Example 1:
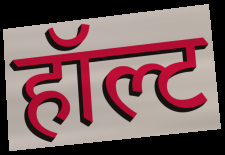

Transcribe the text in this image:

हॉल्ट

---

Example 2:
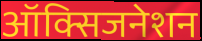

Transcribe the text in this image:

ऑक्सिजनेशन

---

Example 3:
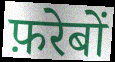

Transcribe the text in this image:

फ़रेबों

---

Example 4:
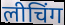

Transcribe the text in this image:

लीचिंग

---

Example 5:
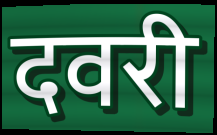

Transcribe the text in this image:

दवरी